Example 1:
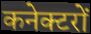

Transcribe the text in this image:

कनेक्टरों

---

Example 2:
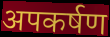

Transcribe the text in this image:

अपकर्षण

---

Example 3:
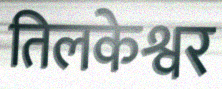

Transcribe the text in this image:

तिलकेश्वर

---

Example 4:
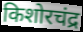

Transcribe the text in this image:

किशोरचंद्र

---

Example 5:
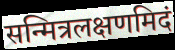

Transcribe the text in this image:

सन्मित्रलक्षणमिदं